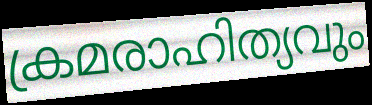
ക്രമരാഹിത്യവും